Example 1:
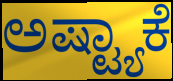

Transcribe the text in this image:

ಅಷ್ಟ್ಯಾಕೆ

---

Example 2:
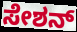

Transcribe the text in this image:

ಸೇಶನ್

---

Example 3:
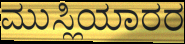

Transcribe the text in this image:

ಮುಸ್ಲಿಯಾರರ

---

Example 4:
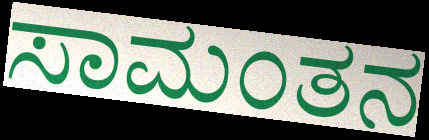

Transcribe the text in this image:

ಸಾಮಂತನ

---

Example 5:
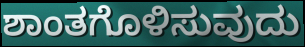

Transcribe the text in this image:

ಶಾಂತಗೊಳಿಸುವುದು